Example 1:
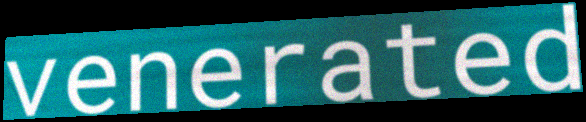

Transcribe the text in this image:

venerated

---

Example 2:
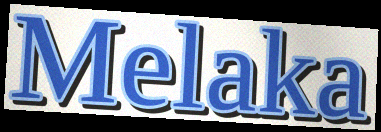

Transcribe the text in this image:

Melaka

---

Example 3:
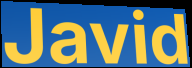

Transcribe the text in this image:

Javid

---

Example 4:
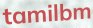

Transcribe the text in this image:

tamilbm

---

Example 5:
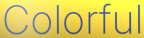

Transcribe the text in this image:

Colorful